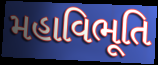
મહાવિભૂતિ